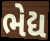
ભેદ્ય